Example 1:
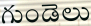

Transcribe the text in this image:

గుండెలు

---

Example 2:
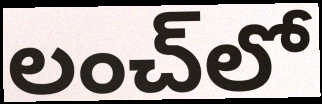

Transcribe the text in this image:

లంచ్‌లో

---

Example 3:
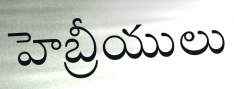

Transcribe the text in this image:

హెబ్రీయులు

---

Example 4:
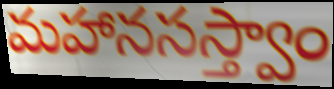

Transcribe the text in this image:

మహానసస్త్వాం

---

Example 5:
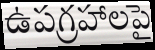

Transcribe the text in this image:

ఉపగ్రహాలపై